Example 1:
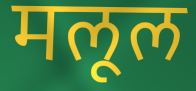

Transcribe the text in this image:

मलूल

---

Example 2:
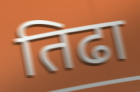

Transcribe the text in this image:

तिढा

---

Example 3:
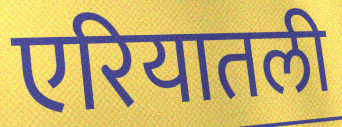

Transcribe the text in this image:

एरियातली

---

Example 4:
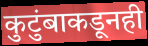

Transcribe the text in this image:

कुटुंबाकडूनही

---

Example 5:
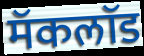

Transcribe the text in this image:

मॅकलॉड